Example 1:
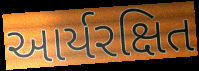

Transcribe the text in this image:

આર્યરક્ષિત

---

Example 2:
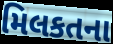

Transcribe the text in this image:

મિલકતના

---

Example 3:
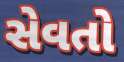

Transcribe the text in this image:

સેવતો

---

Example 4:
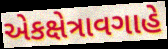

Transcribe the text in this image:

એકક્ષેત્રાવગાહે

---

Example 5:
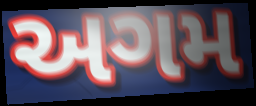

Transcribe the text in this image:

અગમ